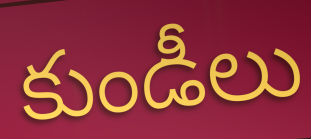
కుండీలు